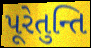
પૂરેતુન્તિ